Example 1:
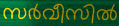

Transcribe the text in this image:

സർവീസിൽ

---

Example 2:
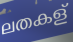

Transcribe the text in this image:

ലതകള്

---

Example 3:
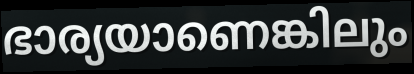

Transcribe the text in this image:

ഭാര്യയാണെങ്കിലും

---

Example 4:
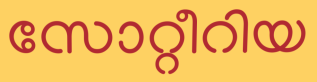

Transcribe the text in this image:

സോറ്റീറിയ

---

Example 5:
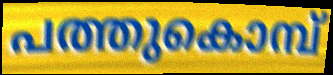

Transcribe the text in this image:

പത്തുകൊമ്പ്